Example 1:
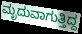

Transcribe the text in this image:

ಮೃದುವಾಗುತ್ತಿದ್ದ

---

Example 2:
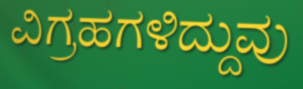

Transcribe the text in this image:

ವಿಗ್ರಹಗಳಿದ್ದುವು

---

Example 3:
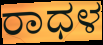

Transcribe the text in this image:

ರಾಧಳ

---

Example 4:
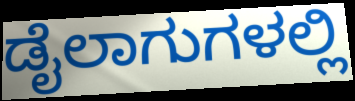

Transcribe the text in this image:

ಡೈಲಾಗುಗಳಲ್ಲಿ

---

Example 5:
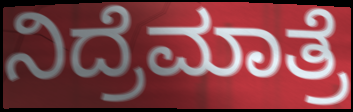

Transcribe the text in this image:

ನಿದ್ರೆಮಾತ್ರೆ